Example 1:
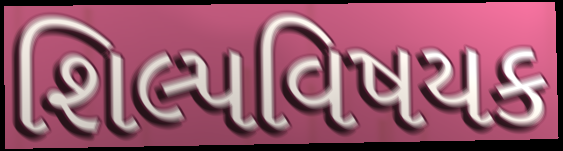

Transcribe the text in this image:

શિલ્પવિષયક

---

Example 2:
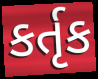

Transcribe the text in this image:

કર્તૃક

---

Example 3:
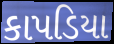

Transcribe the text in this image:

કાપડિયા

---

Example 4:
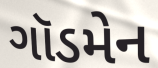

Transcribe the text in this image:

ગૉડમેન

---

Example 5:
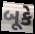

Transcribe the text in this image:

બૂકે